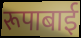
रूपाबाई